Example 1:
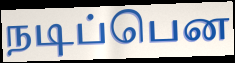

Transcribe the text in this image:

நடிப்பென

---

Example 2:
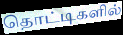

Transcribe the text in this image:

தொட்டிகளில்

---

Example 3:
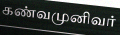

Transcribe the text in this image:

கண்வமுனிவர்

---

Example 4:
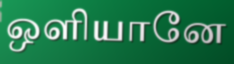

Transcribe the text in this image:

ஒளியானே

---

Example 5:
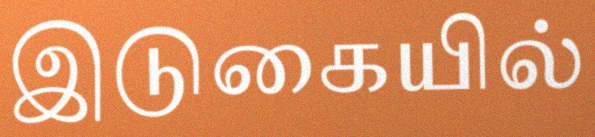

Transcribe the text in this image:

இடுகையில்